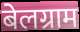
बेलग्राम